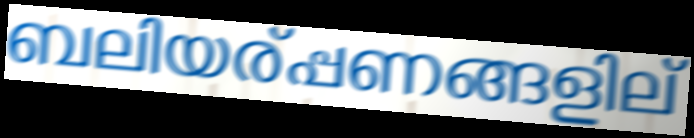
ബലിയര്പ്പണങ്ങളില്